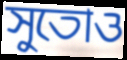
সুতোও